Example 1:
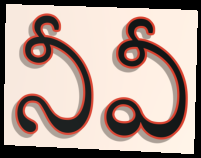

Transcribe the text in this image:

నీవీ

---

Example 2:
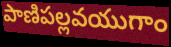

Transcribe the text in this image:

పాణిపల్లవయుగాం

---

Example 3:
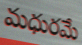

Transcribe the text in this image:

మధురమే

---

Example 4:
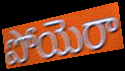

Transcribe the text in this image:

పోయెరా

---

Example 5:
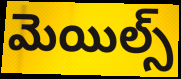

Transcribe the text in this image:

మెయిల్స్